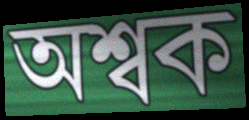
অশ্বক